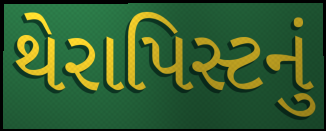
થેરાપિસ્ટનું